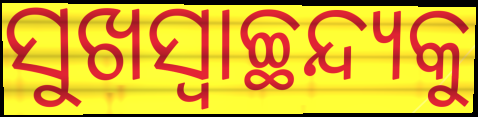
ସୁଖସ୍ଵାଚ୍ଛନ୍ଦ୍ୟକୁ